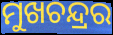
ମୁଖଚନ୍ଦ୍ରର